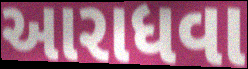
આરાધવા